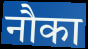
नौका